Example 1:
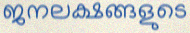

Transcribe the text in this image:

ജനലക്ഷങ്ങളുടെ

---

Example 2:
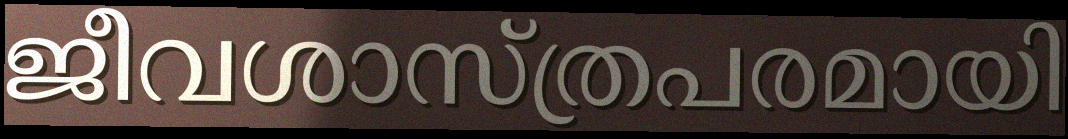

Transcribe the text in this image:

ജീവശാസ്ത്രപരമായി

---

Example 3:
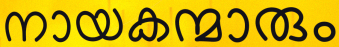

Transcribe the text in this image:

നായകന്മാരും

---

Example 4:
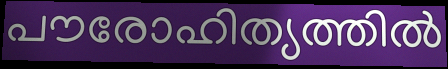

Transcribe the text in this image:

പൗരോഹിത്യത്തിൽ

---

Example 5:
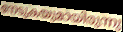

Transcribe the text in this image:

നേടുകയുമായിരുന്നു